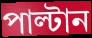
পাল্টান